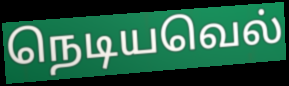
நெடியவெல்